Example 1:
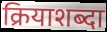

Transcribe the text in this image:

क्रियाशब्दा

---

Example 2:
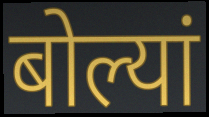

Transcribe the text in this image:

बोल्यां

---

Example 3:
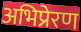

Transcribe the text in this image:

अभिप्रेरण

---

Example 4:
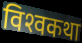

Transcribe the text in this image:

विश्वकथा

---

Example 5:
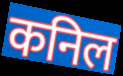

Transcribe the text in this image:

कनिल